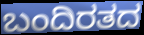
ಬಂದಿರತದ